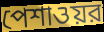
পেশাওয়র